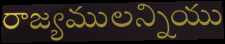
రాజ్యములన్నియు